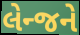
લેન્જને